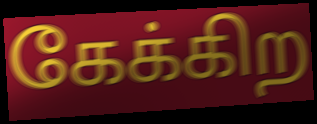
கேக்கிற